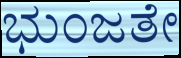
ಭುಂಜತೇ